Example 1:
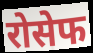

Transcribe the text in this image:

रोसेफ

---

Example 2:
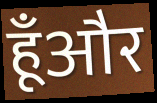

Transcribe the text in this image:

हूँऔर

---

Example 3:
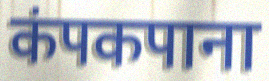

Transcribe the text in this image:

कंपकपाना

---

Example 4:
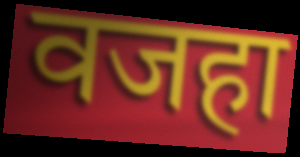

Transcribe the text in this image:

वजहा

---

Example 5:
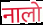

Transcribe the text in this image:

नालो